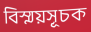
বিস্ময়সূচক